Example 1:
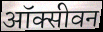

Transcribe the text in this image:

ऑक्सीवन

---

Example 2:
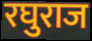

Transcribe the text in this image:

रघुराज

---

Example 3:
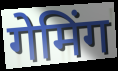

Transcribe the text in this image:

गेमिंग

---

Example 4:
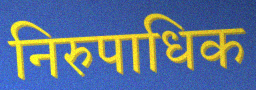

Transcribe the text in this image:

निरुपाधिक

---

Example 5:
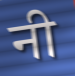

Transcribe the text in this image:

नी